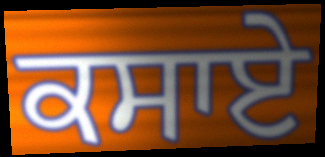
ਕਸਾਏ